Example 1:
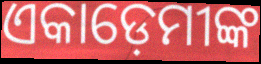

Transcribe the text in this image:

ଏକାଡ଼େମୀଙ୍କ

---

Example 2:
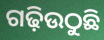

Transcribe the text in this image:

ଗଢ଼ିଉଠୁଛି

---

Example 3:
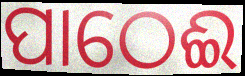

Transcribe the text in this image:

ପାଠେଈ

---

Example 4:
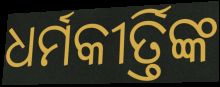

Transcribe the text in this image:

ଧର୍ମକୀର୍ତ୍ତିଙ୍କ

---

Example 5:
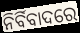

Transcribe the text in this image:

ନିର୍ବିବାଦରେ